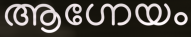
ആഗ്നേയം